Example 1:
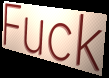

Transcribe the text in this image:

Fuck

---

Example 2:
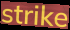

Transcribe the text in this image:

strike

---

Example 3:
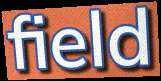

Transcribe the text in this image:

field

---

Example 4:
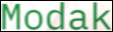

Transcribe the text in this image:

Modak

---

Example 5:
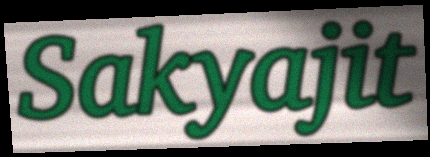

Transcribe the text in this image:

Sakyajit